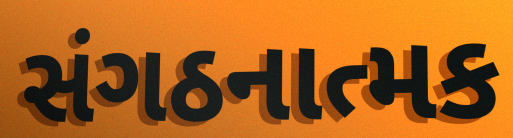
સંગઠનાત્મક